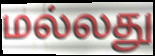
மல்லது